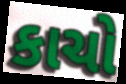
કાચો